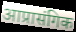
आप्रासंगिक